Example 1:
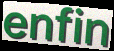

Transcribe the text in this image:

enfin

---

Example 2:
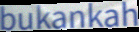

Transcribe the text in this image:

bukankah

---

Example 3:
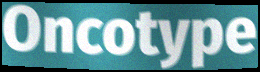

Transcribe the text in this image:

Oncotype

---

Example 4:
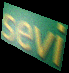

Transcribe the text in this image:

sevi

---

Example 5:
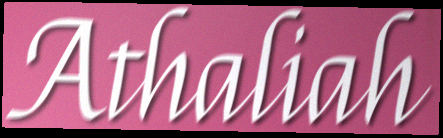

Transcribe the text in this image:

Athaliah